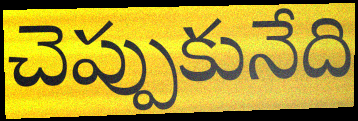
చెప్పుకునేది